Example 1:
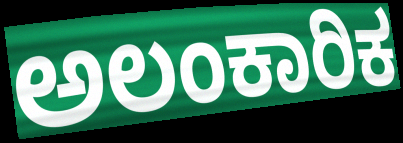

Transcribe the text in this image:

ಅಲಂಕಾರಿಕ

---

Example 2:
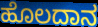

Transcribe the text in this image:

ಹೊಲದಾನ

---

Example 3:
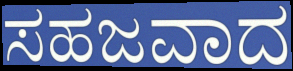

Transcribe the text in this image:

ಸಹಜವಾದ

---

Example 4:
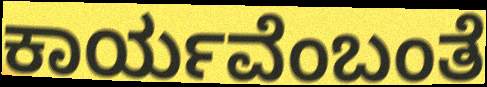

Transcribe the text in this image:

ಕಾರ್ಯವೆಂಬಂತೆ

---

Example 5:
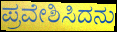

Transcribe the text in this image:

ಪ್ರವೇಶಿಸಿದನು